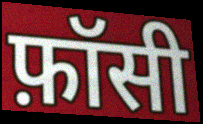
फ़ॉसी